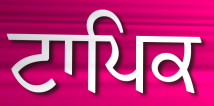
ਟਾਪਿਕ